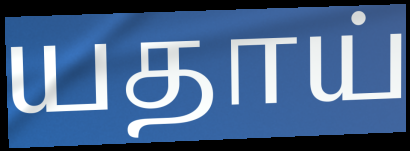
யதாய்